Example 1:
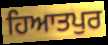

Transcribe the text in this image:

ਹਿਆਤਪੁਰ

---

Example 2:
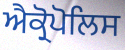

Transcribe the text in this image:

ਐਕ੍ਰੋਪੋਲਿਸ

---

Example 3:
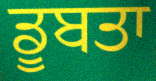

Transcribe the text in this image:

ਡੂਬਤਾ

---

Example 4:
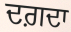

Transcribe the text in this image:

ਦਗ਼ਦਾ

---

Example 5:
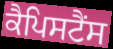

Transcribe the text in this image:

ਕੈਪਿਸਟੈਂਸ